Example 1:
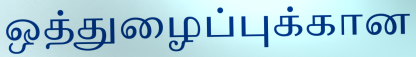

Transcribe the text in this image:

ஒத்துழைப்புக்கான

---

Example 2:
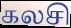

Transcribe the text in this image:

கலசி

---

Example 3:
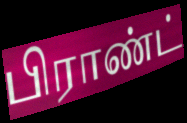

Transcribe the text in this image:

பிராண்ட்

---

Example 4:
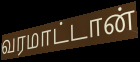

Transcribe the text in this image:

வரமாட்டான்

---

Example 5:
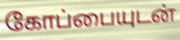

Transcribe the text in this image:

கோப்பையுடன்